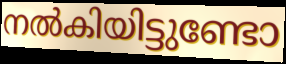
നൽകിയിട്ടുണ്ടോ